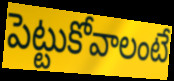
పెట్టుకోవాలంటే